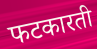
फटकारती